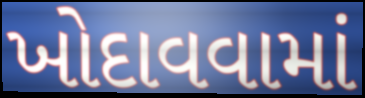
ખોદાવવામાં